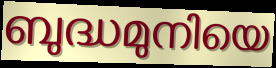
ബുദ്ധമുനിയെ